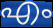
എം